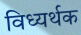
विध्यर्थक